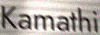
Kamathi